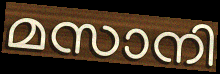
മസാനി